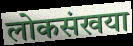
लोकसंखया